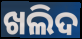
ଖଲିଦ